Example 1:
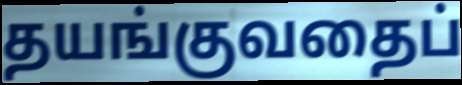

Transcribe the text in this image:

தயங்குவதைப்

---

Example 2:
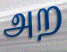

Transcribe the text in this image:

அற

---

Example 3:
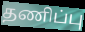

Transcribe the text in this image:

தணிப்பு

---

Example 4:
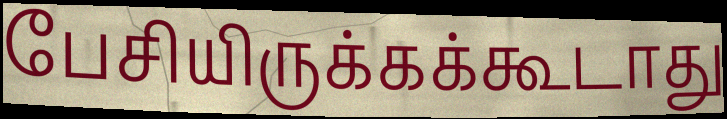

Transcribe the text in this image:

பேசியிருக்கக்கூடாது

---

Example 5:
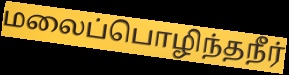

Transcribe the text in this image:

மலைப்பொழிந்தநீர்